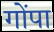
गोंपा